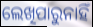
ଲେଖିପାରୁନାହିଁ